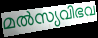
മൽസ്യവിഭവ